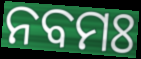
ନବମଃ